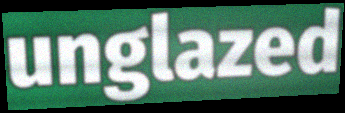
unglazed